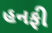
હનફી